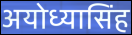
अयोध्यासिंह